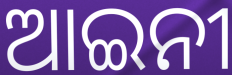
ଆଇନୀ